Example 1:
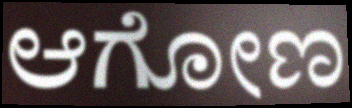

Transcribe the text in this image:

ಆಗೋಣ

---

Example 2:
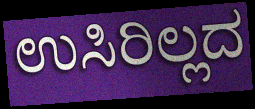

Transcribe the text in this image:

ಉಸಿರಿಲ್ಲದ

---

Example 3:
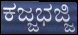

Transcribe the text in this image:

ಕಜ್ಜಭಜ್ಜಿ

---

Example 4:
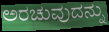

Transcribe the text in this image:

ಅರಚುವುದನ್ನು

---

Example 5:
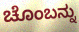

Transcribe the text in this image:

ಚೊಂಬನ್ನು